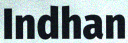
Indhan